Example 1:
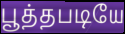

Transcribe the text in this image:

பூத்தபடியே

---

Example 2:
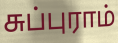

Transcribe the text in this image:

சுப்புராம்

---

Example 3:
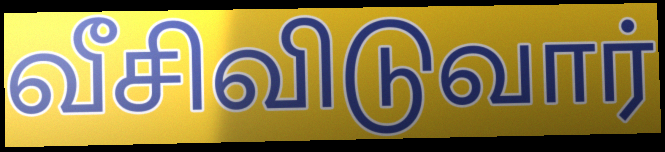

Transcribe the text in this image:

வீசிவிடுவார்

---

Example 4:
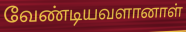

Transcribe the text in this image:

வேண்டியவளானாள்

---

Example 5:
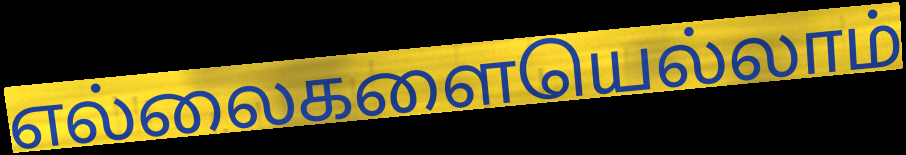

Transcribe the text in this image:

எல்லைகளையெல்லாம்